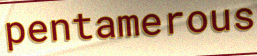
pentamerous